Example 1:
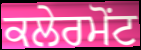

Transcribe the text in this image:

ਕਲੇਰਮੋਂਟ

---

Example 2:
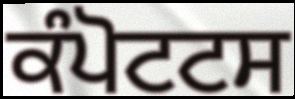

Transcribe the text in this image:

ਕੰਪੋਟਟਸ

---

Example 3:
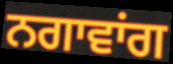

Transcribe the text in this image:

ਨਗਾਵਾਂਗ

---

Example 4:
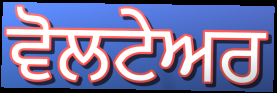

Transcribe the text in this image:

ਵੋਲਟੇਅਰ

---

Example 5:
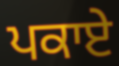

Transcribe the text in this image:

ਪਕਾਏ